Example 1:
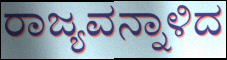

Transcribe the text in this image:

ರಾಜ್ಯವನ್ನಾಳಿದ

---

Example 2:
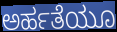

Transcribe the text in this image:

ಅರ್ಹತೆಯೂ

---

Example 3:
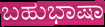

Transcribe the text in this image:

ಬಹುಭಾಷಾ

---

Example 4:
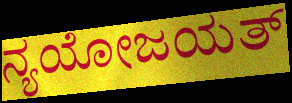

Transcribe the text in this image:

ನ್ಯಯೋಜಯತ್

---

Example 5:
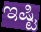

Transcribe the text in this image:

ಇಷ್ಟಿ